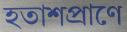
হতাশপ্রাণে